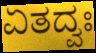
ಏತದ್ವಃ